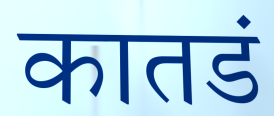
कातडं